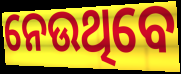
ନେଉଥିବେ